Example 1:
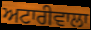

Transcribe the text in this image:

ਅਟਾਰੀਵਾਲਾ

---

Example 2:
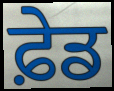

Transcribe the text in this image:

ਫ਼ੇਡ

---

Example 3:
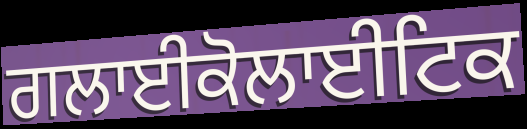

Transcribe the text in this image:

ਗਲਾਈਕੋਲਾਈਟਿਕ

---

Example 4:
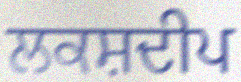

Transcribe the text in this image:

ਲਕਸ਼ਦੀਪ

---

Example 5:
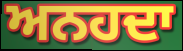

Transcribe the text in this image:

ਅਨਹਦਾ